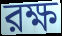
রক্ষ